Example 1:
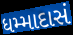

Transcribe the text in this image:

ધમ્માદાસં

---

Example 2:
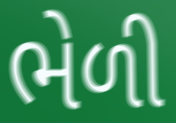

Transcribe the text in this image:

ભેળી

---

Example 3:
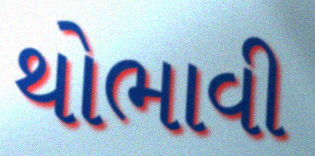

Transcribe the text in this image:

થોભાવી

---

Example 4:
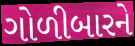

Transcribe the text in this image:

ગોળીબારને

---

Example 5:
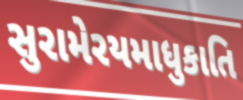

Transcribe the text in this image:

સુરામેરયમાધુકાતિ